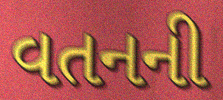
વતનની